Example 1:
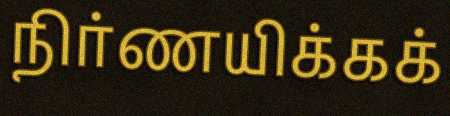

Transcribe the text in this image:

நிர்ணயிக்கக்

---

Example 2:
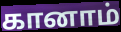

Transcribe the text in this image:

கானாம்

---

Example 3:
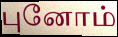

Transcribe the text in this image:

புனோம்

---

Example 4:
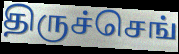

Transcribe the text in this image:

திருச்செங்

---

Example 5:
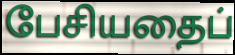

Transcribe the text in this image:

பேசியதைப்